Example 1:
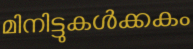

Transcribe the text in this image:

മിനിട്ടുകൾക്കകം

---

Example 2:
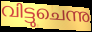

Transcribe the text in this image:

വിട്ടുചെന്നു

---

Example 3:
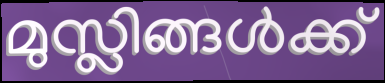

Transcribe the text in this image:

മുസ്ലിങ്ങൾക്ക്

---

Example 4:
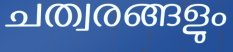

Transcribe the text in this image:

ചത്വരങ്ങളും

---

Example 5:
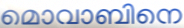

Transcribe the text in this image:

മൊവാബിനെ